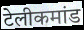
टेलीकमांड